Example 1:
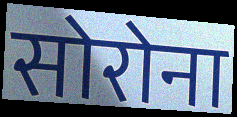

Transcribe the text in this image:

सोरोना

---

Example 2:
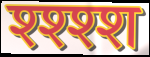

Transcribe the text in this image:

श्श्श्श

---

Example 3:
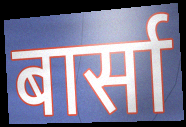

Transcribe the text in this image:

बार्सा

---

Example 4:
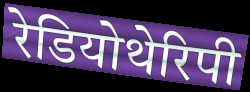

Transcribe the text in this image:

रेडियोथेरिपी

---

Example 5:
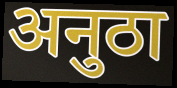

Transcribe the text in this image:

अनुठा